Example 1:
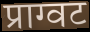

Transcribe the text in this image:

प्राग्वट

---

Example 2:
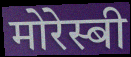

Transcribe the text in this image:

मोरेस्बी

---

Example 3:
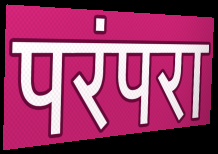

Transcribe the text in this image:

परंपरा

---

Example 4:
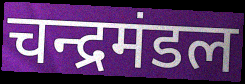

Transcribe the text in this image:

चन्द्रमंडल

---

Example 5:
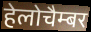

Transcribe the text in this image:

हेलोचैम्बर